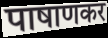
पाषाणकर